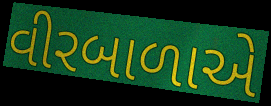
વીરબાળાએ